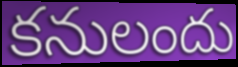
కనులందు